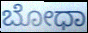
ಬೋಧಾ